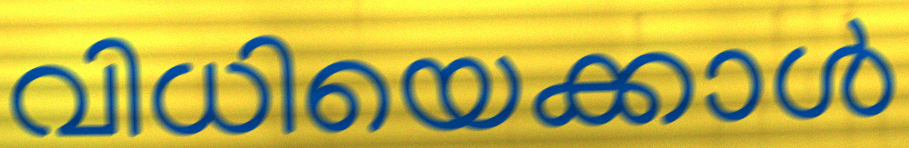
വിധിയെക്കാൾ